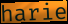
harie